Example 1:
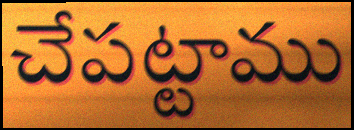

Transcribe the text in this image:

చేపట్టాము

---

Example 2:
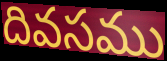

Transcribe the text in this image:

దివసము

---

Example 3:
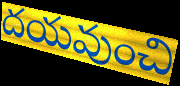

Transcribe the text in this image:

దయవుంచి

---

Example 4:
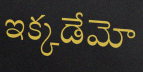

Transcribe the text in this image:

ఇక్కడేమో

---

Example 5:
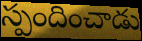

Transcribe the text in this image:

స్పందించాడు